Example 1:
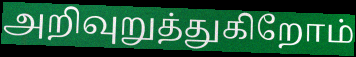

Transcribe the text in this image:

அறிவுறுத்துகிறோம்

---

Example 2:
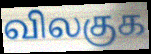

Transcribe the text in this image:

விலகுக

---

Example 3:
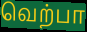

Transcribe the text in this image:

வெற்பா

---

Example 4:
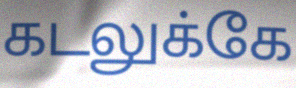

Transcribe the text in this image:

கடலுக்கே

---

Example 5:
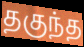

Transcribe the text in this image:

தகுந்த